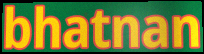
bhatnan